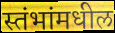
स्तंभांमधील